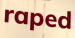
raped